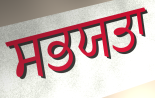
ਸਭਯਤਾ